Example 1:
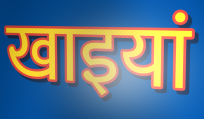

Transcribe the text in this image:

खाइयां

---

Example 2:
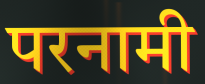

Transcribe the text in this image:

परनामी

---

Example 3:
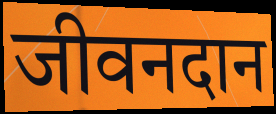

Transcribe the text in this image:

जीवनदान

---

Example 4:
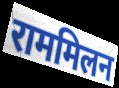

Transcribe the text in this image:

राममिलन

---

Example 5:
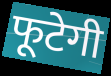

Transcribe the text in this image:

फूटेगी